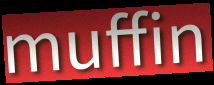
muffin